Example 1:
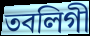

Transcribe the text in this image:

তবলিগী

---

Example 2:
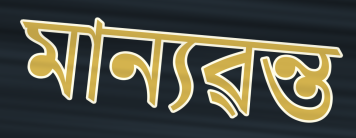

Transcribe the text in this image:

মান্যৱন্ত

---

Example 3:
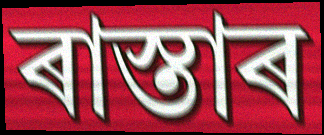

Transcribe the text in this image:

ৰাস্তাৰ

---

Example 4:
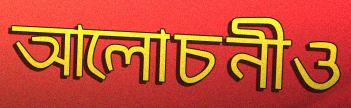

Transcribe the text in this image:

আলোচনীও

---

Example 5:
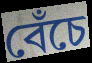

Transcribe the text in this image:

বেঁচে